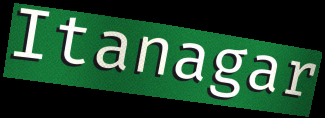
Itanagar